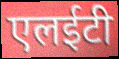
एलईटी